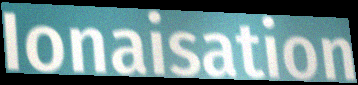
Ionaisation